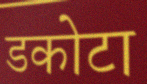
डकोटा